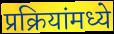
प्रक्रियांमध्ये